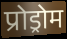
प्रोड्रोम